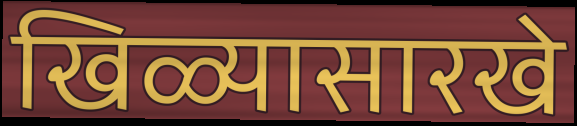
खिळ्यासारखे